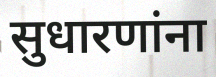
सुधारणांना